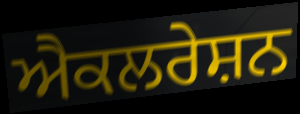
ਐਕਲਰੇਸ਼ਨ